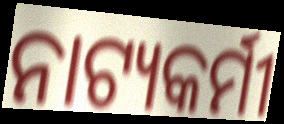
ନାଟ୍ୟକର୍ମୀ